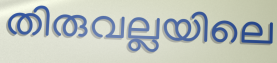
തിരുവല്ലയിലെ